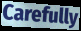
Carefully